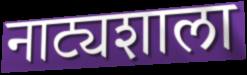
नाट्यशाला